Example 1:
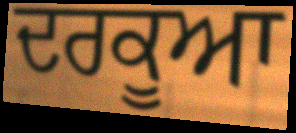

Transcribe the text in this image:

ਦਰਕੂਆ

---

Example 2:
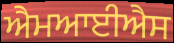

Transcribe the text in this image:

ਐਮਆਈਐਸ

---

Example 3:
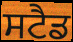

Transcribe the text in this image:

ਸਟੈਡ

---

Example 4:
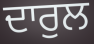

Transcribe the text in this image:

ਦਾਰੁਲ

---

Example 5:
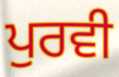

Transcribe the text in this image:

ਪੁਰਵੀ